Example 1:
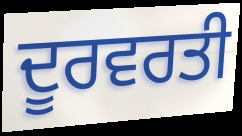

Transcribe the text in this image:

ਦੂਰਵਰਤੀ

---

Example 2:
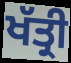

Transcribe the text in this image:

ਖੱਤ੍ਰੀ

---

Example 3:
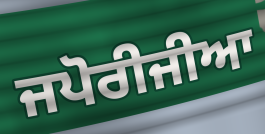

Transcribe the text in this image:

ਜਪੋਰੀਜੀਆ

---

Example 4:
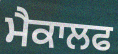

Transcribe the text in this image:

ਮੈਕਾਲਫ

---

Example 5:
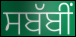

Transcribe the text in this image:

ਸਬੱਬੀਂ